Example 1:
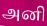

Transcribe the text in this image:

அனி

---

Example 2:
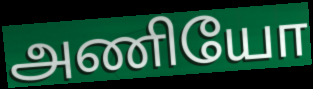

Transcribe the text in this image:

அணியோ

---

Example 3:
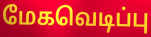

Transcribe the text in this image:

மேகவெடிப்பு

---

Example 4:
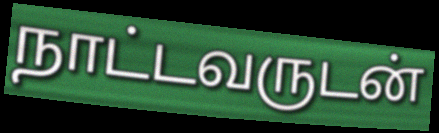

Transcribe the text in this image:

நாட்டவருடன்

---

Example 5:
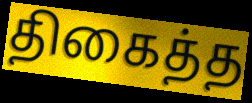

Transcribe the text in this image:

திகைத்த